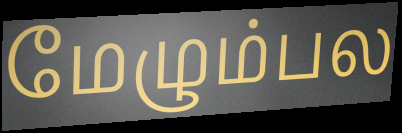
மேழும்பல